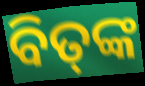
ବିତ୍‌ଙ୍କ